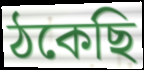
ঠকেছি